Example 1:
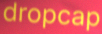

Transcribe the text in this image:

dropcap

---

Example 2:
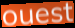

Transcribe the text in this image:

ouest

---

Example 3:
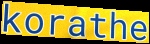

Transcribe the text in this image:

korathe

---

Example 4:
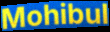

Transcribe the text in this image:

Mohibul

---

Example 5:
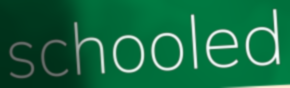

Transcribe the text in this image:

schooled